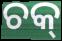
ଚକ୍